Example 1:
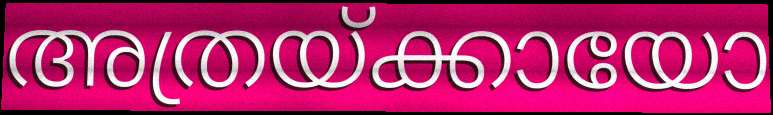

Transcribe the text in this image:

അത്രയ്ക്കായോ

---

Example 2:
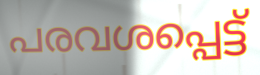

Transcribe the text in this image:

പരവശപ്പെട്ട്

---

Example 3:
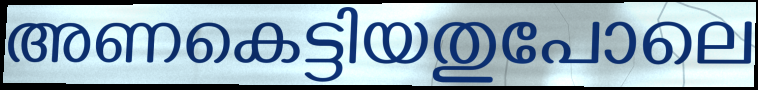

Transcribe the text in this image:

അണകെട്ടിയതുപോലെ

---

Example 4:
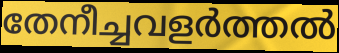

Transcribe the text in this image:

തേനീച്ചവളർത്തൽ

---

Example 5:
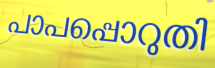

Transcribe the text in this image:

പാപപ്പൊറുതി